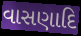
વાસણાદિ